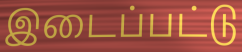
இடைப்பட்டு